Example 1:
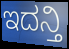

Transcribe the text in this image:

ಇದನ್ತಿ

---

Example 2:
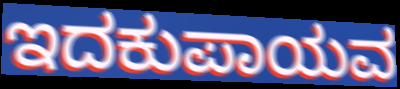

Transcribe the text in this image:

ಇದಕುಪಾಯವ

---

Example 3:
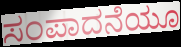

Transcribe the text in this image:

ಸಂಪಾದನೆಯೂ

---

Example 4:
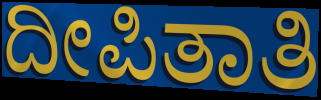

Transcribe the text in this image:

ದೀಪಿತಾತಿ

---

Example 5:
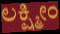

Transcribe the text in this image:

ಲಕ್ಷ್ಮೀಂ